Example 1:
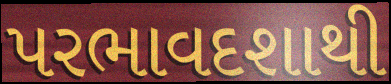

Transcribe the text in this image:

પરભાવદશાથી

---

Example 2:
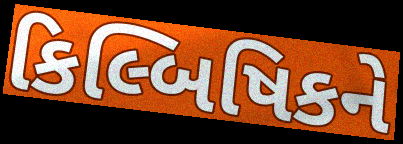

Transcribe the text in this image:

કિલ્બિષિકને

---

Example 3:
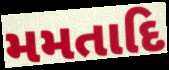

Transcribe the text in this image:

મમતાદિ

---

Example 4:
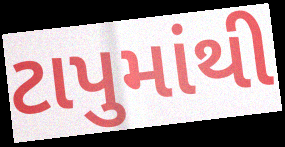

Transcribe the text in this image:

ટાપુમાંથી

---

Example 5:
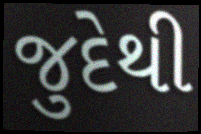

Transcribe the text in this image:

જુદેથી